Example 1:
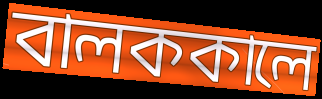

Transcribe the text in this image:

বালককালে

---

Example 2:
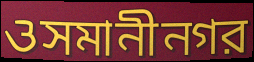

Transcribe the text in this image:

ওসমানীনগর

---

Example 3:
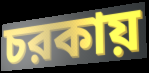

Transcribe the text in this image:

চরকায়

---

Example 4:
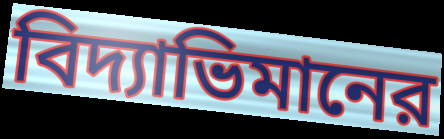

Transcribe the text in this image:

বিদ্যাভিমানের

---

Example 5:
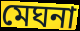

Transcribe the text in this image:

মেঘনা